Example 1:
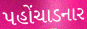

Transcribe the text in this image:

પહોંચાડનાર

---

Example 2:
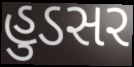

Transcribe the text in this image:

હુડસર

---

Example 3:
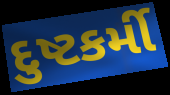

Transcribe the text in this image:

દુષ્ટકર્મી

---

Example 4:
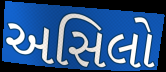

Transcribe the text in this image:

અસિલો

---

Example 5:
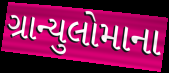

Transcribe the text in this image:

ગ્રાન્યુલોમાના